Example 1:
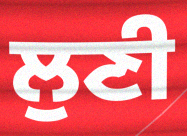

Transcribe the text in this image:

ਲੁਣੀ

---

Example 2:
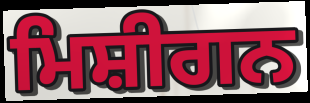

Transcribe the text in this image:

ਮਿਸ਼ੀਗਨ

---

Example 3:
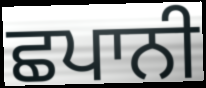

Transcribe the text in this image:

ਛਪਾਨੀ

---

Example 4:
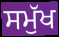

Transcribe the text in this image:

ਸਮੁੱਖ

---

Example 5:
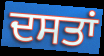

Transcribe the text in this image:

ਦਸਤਾਂ